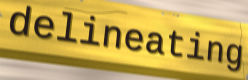
delineating